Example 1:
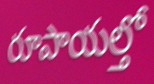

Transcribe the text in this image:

రూపాయల్తో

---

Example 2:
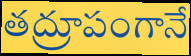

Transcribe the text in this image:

తద్రూపంగానే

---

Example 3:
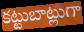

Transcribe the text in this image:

కట్టుబాట్లుగా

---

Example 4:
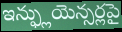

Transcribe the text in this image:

ఇన్ఫ్లుయెన్సర్లపై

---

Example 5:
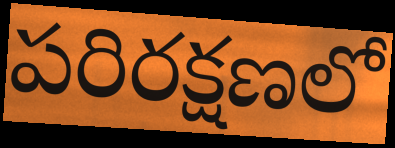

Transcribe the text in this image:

పరిరక్షణలో